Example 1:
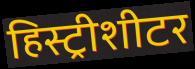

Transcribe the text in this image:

हिस्ट्रीशीटर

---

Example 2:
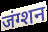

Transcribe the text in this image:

जंग्शन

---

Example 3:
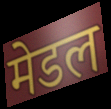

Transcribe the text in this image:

मेडल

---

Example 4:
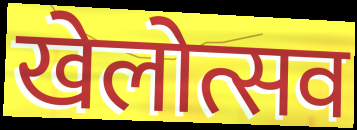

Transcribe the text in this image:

खेलोत्सव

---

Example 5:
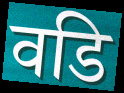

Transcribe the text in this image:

वडि